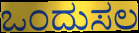
ಒಂದುಸಲ